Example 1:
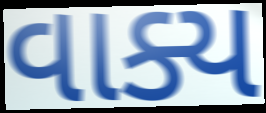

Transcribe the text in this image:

વાક્ય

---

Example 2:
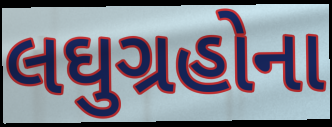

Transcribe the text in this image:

લઘુગ્રહોના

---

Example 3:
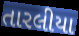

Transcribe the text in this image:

તારલીયા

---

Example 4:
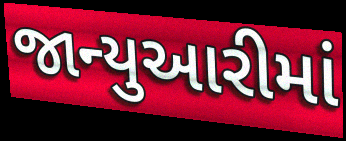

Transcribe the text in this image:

જાન્યુઆરીમાં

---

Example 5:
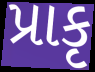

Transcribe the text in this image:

પ્રાકૃ